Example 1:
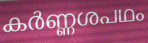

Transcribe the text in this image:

കർണ്ണശപഥം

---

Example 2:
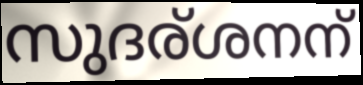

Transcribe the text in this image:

സുദര്ശനന്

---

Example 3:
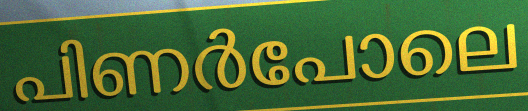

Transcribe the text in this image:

പിണർപോലെ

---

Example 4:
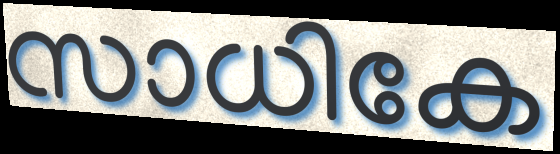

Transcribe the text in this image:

സാധികേ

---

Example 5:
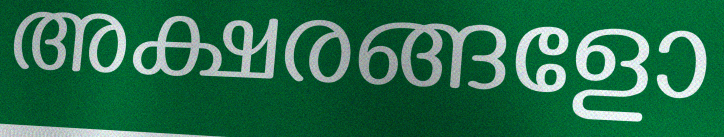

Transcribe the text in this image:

അക്ഷരങ്ങളോ